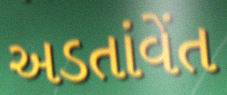
અડતાંવેંત